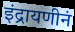
इंद्रायणीनं